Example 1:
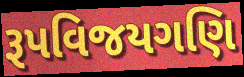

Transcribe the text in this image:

રૂપવિજયગણિ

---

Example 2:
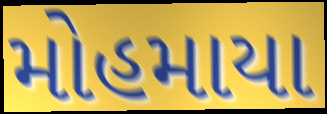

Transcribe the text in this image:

મોહમાયા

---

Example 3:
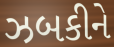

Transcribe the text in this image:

ઝબકીને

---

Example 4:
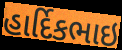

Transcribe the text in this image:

હાર્દિકભાઇ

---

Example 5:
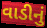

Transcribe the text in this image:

વાડીનું